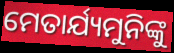
ମେତାର୍ଯ୍ୟମୁନିଙ୍କୁ